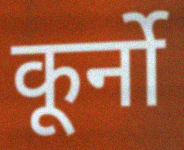
कूर्नो